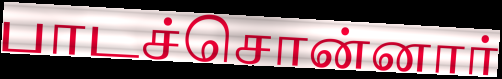
பாடச்சொன்னார்